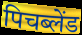
पिचब्लेंड